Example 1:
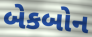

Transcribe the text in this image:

બેકબોન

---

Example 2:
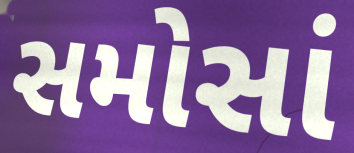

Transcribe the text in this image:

સમોસાં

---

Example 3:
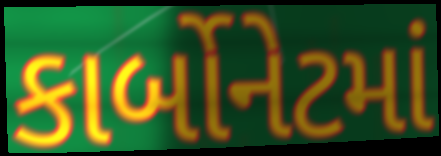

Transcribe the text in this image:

કાર્બોનેટમાં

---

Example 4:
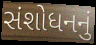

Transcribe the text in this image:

સંશોધનનું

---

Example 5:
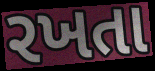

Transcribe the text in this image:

રખતા